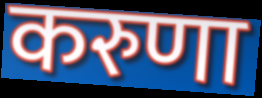
करुणा